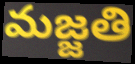
మజ్జతి